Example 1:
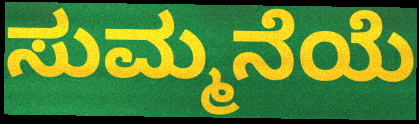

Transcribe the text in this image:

ಸುಮ್ಮನೆಯೆ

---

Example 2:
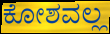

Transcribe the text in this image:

ಕೋಶವಲ್ಲ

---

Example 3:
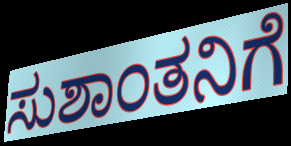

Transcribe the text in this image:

ಸುಶಾಂತನಿಗೆ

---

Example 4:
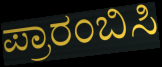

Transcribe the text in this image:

ಪ್ರಾರಂಬಿಸಿ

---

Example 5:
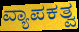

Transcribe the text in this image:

ವ್ಯಾಪಕತ್ವ